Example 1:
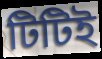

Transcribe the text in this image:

টিটিই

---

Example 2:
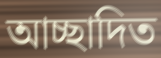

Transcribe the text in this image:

আচ্ছাদিত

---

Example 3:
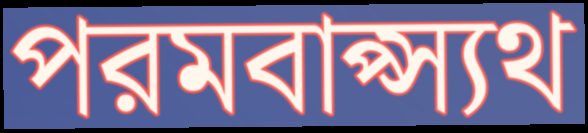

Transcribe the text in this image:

পরমবাপ্স্যথ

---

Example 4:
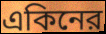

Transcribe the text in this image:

একিনের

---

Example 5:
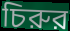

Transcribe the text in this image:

চিরুর